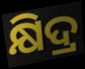
କ୍ଷିଦ୍ର